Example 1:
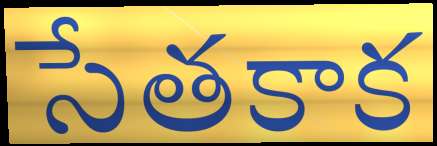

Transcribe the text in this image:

సేతకాక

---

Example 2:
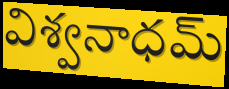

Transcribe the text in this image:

విశ్వనాధమ్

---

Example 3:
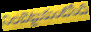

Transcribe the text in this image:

నిలబెట్టుకుంటోంది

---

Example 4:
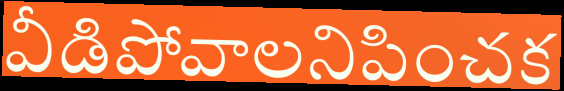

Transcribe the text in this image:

వీడిపోవాలనిపించక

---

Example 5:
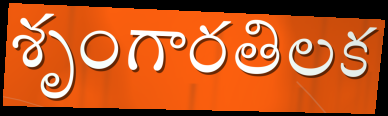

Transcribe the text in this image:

శృంగారతిలక